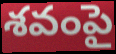
శవంపై